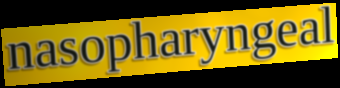
nasopharyngeal